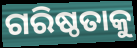
ଗରିଷ୍ଠତାକୁ